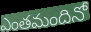
ఎంతమందినో